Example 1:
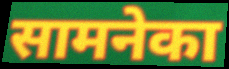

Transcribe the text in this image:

सामनेका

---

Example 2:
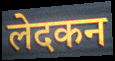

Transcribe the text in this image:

लेदकन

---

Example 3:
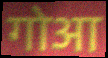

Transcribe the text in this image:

गोआ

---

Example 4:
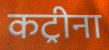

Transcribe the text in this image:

कट्रीना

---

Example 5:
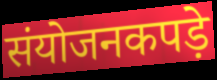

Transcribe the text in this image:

संयोजनकपड़े